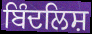
ਬਿੰਦਲਿਸ਼